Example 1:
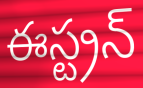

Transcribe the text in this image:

ఈస్ట్రన్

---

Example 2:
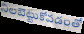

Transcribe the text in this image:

నిలబెట్టుకోవడంతో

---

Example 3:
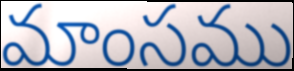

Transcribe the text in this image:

మాంసము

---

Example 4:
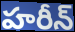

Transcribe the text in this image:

హరీన్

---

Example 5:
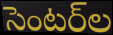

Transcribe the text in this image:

సెంటర్‌ల